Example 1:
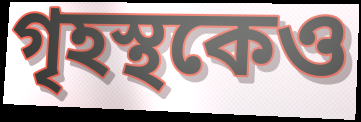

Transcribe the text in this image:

গৃহস্থকেও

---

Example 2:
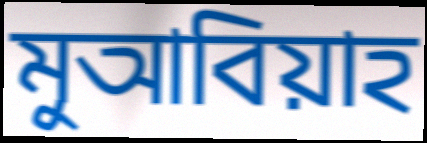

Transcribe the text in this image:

মুআবিয়াহ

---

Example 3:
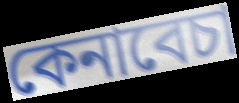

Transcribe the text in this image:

কেনাবেচা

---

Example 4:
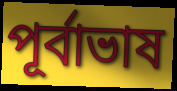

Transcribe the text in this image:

পূর্বাভাষ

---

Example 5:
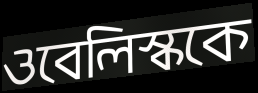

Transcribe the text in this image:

ওবেলিস্ককে